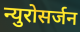
न्युरोसर्जन